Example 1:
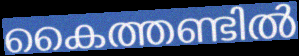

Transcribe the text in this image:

കൈത്തണ്ടിൽ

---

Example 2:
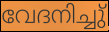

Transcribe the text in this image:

വേദനിച്ചു്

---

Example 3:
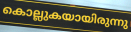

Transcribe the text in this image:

കൊല്ലുകയായിരുന്നു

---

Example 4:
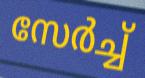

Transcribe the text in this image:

സേർച്ച്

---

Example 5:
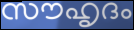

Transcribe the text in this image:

സൗഹൃദം